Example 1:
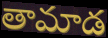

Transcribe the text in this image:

తామాడ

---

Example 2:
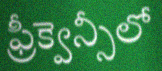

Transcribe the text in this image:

ఫ్రీక్వెన్సీలో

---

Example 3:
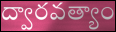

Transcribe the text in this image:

ద్వారవత్యాం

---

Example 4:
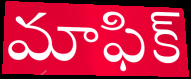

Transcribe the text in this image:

మాఫిక్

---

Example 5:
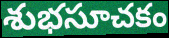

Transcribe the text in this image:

శుభసూచకం